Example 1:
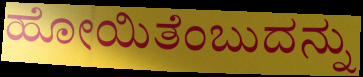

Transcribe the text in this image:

ಹೋಯಿತೆಂಬುದನ್ನು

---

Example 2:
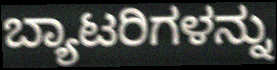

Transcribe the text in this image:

ಬ್ಯಾಟರಿಗಳನ್ನು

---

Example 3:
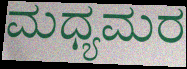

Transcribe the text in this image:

ಮಧ್ಯಮರ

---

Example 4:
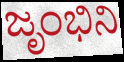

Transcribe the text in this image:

ಜೃಂಭಿನಿ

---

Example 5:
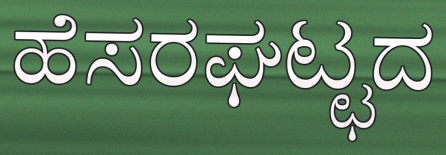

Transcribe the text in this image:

ಹೆಸರಘಟ್ಟದ